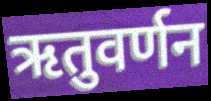
ऋतुवर्णन